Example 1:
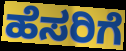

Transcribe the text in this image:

ಹೆಸರಿಗೆ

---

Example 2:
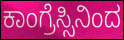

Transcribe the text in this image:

ಕಾಂಗ್ರೆಸ್ಸಿನಿಂದ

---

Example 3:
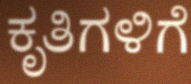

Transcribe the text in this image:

ಕೃತಿಗಳಿಗೆ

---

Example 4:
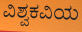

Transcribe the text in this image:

ವಿಶ್ವಕವಿಯ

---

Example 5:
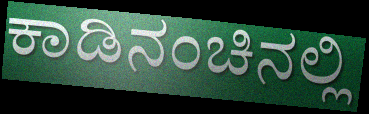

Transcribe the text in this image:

ಕಾಡಿನಂಚಿನಲ್ಲಿ